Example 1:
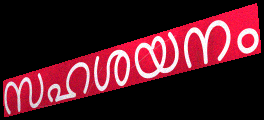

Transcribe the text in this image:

സഹശയനം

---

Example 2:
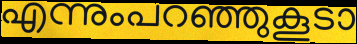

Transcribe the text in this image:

എന്നുംപറഞ്ഞുകൂടാ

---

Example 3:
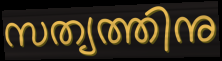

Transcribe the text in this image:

സത്യത്തിനു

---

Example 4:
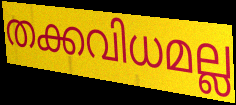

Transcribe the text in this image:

തക്കവിധമല്ല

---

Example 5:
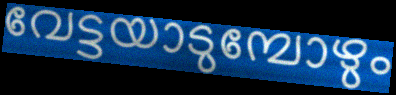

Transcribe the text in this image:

വേട്ടയാടുമ്പോഴും